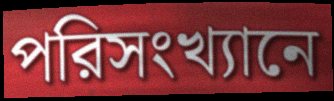
পরিসংখ্যানে